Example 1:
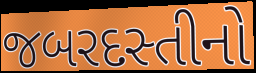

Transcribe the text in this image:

જબરદસ્તીનો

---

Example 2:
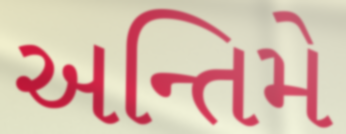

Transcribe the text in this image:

અન્તિમે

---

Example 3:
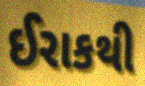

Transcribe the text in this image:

ઈરાકથી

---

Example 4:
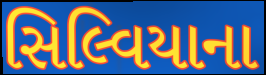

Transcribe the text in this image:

સિલ્વિયાના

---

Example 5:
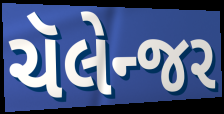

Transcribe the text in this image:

ચૅલેન્જર